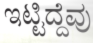
ಇಟ್ಟಿದ್ದೆವು